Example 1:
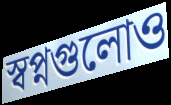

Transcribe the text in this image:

স্বপ্নগুলোও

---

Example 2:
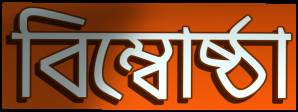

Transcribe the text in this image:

বিম্বোষ্ঠা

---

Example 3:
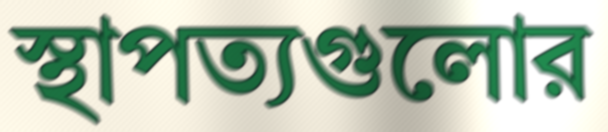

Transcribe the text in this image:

স্থাপত্যগুলোর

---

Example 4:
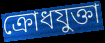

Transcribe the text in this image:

ক্রোধযুক্তা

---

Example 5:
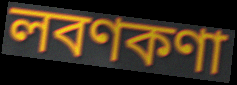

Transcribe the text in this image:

লবণকণা